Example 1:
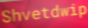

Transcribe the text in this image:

Shvetdwip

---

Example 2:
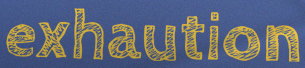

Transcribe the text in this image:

exhaution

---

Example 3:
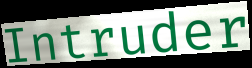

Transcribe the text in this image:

Intruder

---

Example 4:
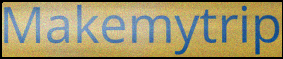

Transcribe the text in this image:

Makemytrip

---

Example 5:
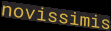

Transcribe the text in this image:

novissimis